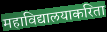
महाविद्यालयाकरिता